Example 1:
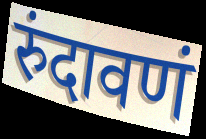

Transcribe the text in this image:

रुंदावणं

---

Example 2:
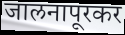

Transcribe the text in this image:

जालनापूरकर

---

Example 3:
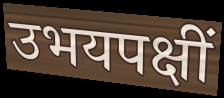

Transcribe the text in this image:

उभयपक्षीं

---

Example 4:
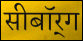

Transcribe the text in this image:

सीबॉर्ग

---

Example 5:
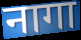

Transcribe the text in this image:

नागा